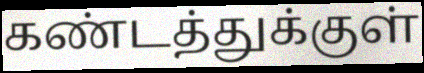
கண்டத்துக்குள்